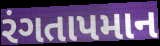
રંગતાપમાન